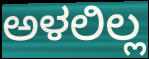
ಅಳಲಿಲ್ಲ